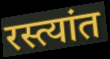
रस्त्यांत